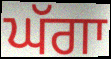
ਘੱਗਾ